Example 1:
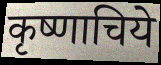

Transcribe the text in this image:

कृष्णाचिये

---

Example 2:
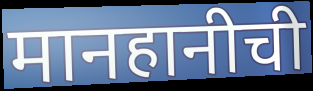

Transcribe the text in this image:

मानहानीची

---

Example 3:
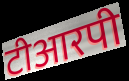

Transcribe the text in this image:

टीआरपी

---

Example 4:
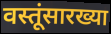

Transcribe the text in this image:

वस्तूंसारख्या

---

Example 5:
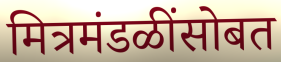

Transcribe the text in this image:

मित्रमंडळींसोबत